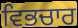
ਵਿਭਚਾਰ